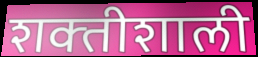
शक्‍तीशाली